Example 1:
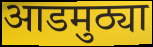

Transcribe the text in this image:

आडमुठ्या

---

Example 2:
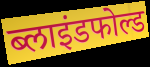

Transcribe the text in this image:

ब्लाइंडफोल्ड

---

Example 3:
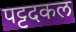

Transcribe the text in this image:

पट्टदकल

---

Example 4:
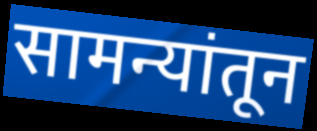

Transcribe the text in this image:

सामन्यांतून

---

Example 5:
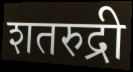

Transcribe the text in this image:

शतरुद्री